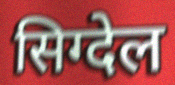
सिग्देल